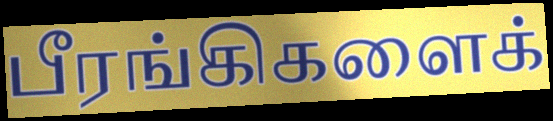
பீரங்கிகளைக்